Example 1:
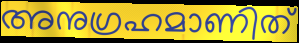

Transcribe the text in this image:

അനുഗ്രഹമാണിത്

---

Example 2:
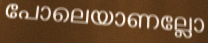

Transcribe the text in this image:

പോലെയാണല്ലോ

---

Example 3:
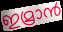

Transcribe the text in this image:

ഇമ്രാൻ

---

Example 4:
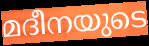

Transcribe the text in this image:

മദീനയുടെ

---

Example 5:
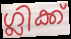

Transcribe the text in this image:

ഗ്ലിക്ക്